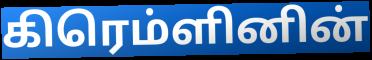
கிரெம்ளினின்